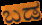
ಬಡ